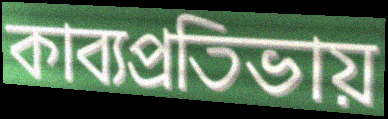
কাব্যপ্রতিভায়